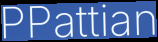
PPattian